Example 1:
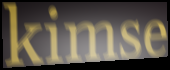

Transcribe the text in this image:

kimse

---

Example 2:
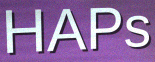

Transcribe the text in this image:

HAPs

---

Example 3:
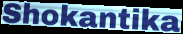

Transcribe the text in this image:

Shokantika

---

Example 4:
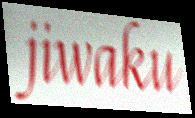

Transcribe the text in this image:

jiwaku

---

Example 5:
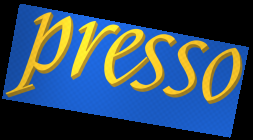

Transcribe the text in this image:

presso